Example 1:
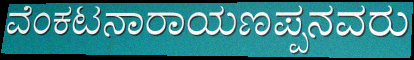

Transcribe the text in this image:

ವೆಂಕಟನಾರಾಯಣಪ್ಪನವರು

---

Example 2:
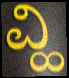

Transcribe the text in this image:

ವ್ಹಿ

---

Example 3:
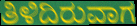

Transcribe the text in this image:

ತಿಳಿದಿರುವಾಗ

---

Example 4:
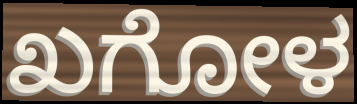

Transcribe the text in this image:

ಖಗೋಳ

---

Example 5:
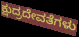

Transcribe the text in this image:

ಕ್ಷುದ್ರದೇವತೆಗಳು